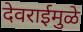
देवराईमुळे